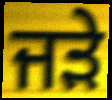
ਜੜੇ